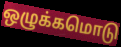
ஒழுக்கமொடு